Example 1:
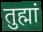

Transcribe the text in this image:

तुह्मां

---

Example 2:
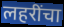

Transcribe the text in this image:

लहरींचा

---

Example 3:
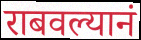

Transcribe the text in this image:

राबवल्यानं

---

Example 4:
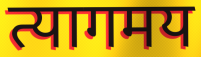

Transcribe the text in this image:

त्यागमय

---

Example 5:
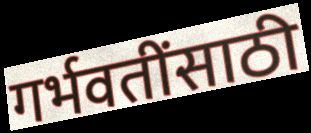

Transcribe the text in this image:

गर्भवतींसाठी